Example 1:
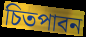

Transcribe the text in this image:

চিতপাবন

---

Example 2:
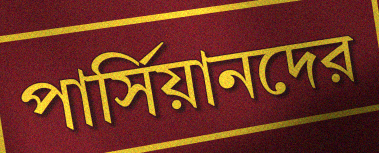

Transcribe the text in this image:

পার্সিয়ানদের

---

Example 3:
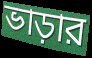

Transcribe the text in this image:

ভাড়ার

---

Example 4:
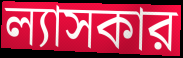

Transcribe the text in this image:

ল্যাসকার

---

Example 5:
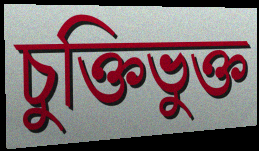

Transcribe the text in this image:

চুক্তিভুক্ত